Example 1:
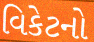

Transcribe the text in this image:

વિકેટનો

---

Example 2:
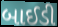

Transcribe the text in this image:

બાઈડી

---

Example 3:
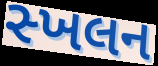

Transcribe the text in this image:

સ્ખલન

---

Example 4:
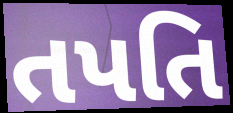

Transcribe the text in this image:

તપતિ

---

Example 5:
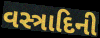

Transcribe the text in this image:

વસ્ત્રાદિની